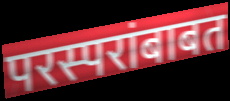
परस्परांबाबत